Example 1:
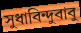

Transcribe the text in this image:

সুধাবিন্দুবাবু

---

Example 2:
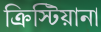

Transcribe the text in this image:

ক্রিস্টিয়ানা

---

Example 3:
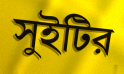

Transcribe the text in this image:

সুইটির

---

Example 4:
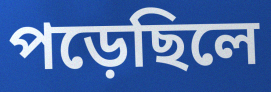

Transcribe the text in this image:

পড়েছিলে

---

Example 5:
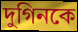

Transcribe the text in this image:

দুগিনকে